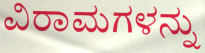
ವಿರಾಮಗಳನ್ನು